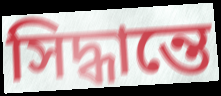
সিদ্ধান্তে